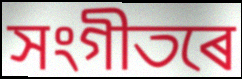
সংগীতৰে